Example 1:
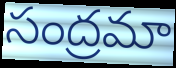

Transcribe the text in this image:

సంద్రమా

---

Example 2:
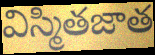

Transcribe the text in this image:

విస్మితజాత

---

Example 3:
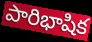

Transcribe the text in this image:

పారిభాషిక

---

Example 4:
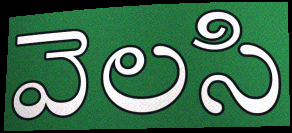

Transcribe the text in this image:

వెలసి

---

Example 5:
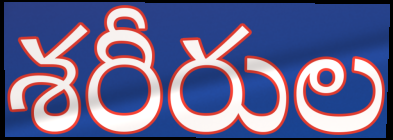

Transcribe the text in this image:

శరీరుల